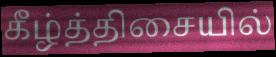
கீழ்த்திசையில்